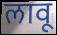
लावू